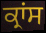
ਕ੍ਰਾਂਸ